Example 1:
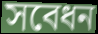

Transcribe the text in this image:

সবেধন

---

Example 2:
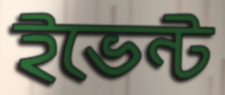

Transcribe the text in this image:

ইভেন্ট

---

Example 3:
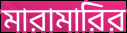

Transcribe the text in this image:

মারামারির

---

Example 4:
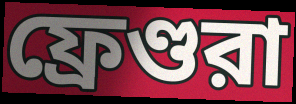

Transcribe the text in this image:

ফ্রেণ্ডরা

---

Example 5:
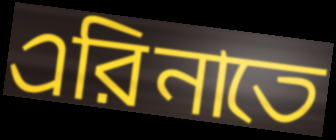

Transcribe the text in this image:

এরিনাতে